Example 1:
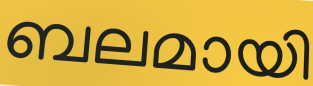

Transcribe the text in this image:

ബലമായി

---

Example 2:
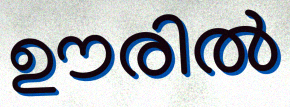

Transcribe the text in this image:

ഊരിൽ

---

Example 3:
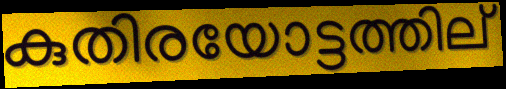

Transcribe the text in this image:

കുതിരയോട്ടത്തില്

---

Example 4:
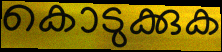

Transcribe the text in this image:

കൊടുക്കുക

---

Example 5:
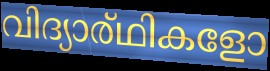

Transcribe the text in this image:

വിദ്യാര്ഥികളോ